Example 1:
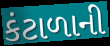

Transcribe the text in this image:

કંટાળાની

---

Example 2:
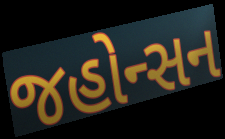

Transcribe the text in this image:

જહોન્સન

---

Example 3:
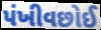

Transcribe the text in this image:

પંખીવછોઈ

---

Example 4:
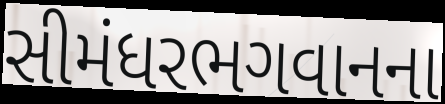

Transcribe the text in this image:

સીમંધરભગવાનના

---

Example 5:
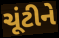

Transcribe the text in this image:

ચૂંટીને